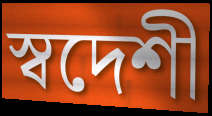
স্বদেশী